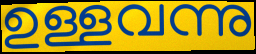
ഉള്ളവന്നു